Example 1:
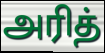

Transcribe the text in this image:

அரித்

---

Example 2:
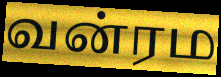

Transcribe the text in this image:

வன்ரம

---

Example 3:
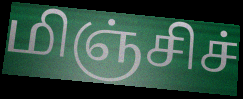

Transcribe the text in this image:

மிஞ்சிச்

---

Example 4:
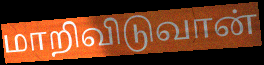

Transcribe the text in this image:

மாறிவிடுவான்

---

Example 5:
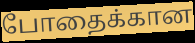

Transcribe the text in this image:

போதைக்கான